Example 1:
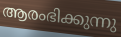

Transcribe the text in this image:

ആരംഭിക്കുന്നു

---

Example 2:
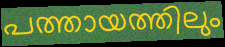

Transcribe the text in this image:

പത്തായത്തിലും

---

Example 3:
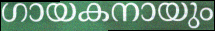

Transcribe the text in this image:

ഗായകനായും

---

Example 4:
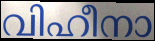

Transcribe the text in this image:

വിഹീനാ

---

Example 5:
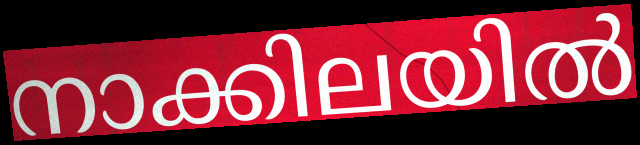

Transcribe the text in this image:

നാക്കിലയിൽ